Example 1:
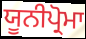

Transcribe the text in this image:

ਯੂਨੀਪ੍ਰੋਮਾ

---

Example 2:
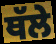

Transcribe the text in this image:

ਥੱਲੇ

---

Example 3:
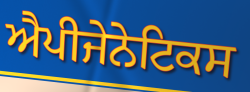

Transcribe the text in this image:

ਐਪੀਜੇਨੇਟਿਕਸ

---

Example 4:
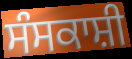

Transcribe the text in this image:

ਸੰਸਕਾਸ਼ੀ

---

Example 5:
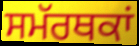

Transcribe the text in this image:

ਸਮੱਰਥਕਾਂ